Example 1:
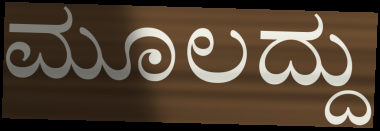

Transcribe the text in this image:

ಮೂಲದ್ದು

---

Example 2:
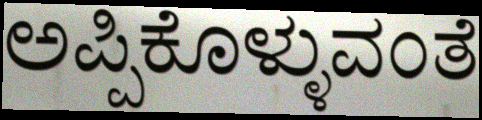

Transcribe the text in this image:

ಅಪ್ಪಿಕೊಳ್ಳುವಂತೆ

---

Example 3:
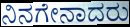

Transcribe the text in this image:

ನಿನಗೇನಾದರು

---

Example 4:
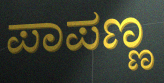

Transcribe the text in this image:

ಪಾಪಣ್ಣ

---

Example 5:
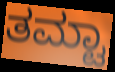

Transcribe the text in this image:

ತಮ್ಟಾ